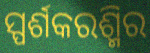
ସ୍ପର୍ଶକରଶ୍ମିର